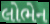
લોભેન